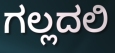
ಗಲ್ಲದಲಿ